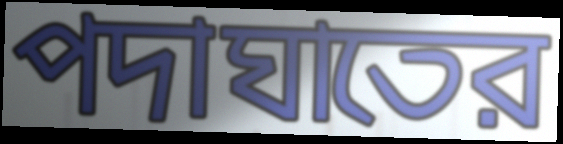
পদাঘাতের